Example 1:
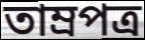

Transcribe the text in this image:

তাম্রপত্র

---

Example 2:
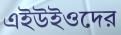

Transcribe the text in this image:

এইউইওদের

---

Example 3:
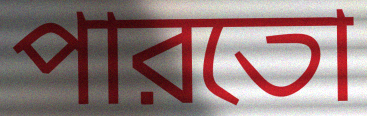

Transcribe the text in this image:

পারতো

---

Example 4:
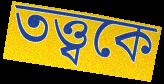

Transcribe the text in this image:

তত্ত্বকে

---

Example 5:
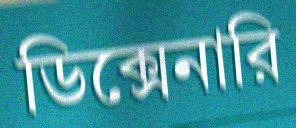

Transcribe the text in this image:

ডিক্সেনারি